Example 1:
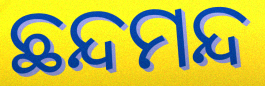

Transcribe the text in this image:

ଛନ୍ଦମନ୍ଦ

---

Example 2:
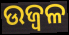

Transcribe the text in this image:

ଉଜ୍ବଳ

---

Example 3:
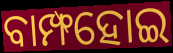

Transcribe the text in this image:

ବାମ୍ଫହୋଇ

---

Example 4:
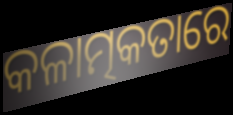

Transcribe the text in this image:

କଳାତ୍ମକତାରେ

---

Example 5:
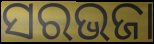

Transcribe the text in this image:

ସରଭଜା